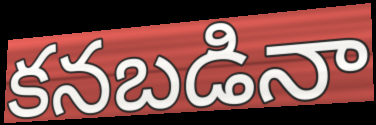
కనబడినా